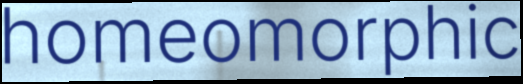
homeomorphic